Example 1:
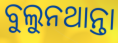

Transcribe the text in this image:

ବୁଲୁନଥାନ୍ତା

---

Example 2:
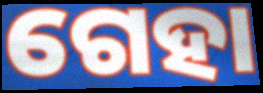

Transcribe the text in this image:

ଗେହା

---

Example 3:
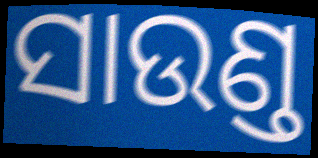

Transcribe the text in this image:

ସାଉଣ୍ଡ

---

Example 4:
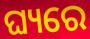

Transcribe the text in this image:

ଘ୍ୟରେ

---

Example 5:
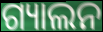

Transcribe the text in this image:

ଗ୍ୟାଲନ